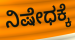
ನಿಷೇಧಕ್ಕೆ